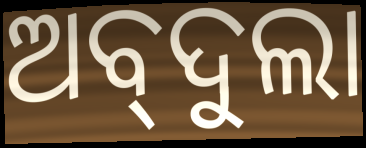
ଅବ୍‌ଦୁଲା